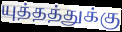
யுத்தத்துக்கு